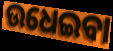
ଉଧେଇବା